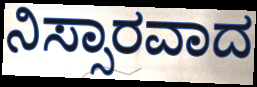
ನಿಸ್ಸಾರವಾದ